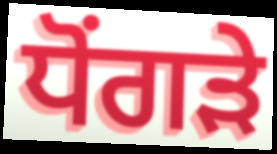
ਧੋਂਗੜੇ